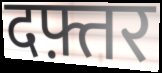
दफ़्तर